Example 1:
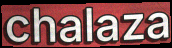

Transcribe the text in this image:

chalaza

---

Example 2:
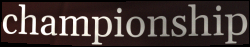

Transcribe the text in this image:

championship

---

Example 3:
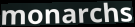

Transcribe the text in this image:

monarchs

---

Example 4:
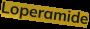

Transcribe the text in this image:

Loperamide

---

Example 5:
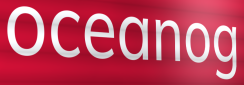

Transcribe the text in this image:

oceanog